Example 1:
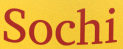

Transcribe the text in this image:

Sochi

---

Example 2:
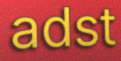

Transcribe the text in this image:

adst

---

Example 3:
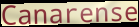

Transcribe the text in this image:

Canarense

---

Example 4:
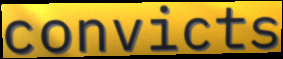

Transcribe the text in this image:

convicts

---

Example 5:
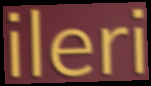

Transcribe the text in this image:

ileri